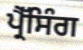
ਪ੍ਰੈੱਸਿੰਗ